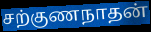
சற்குணநாதன்